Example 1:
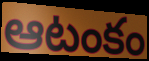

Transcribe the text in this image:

ఆటంకం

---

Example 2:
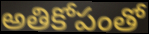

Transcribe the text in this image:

అతికోపంతో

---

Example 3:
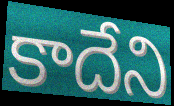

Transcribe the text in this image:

కాదేని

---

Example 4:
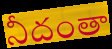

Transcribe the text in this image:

నీదంతా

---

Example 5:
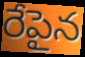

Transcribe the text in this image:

రేపైన